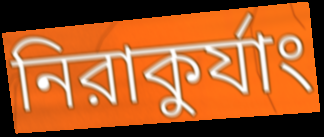
নিরাকুর্যাং